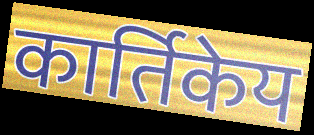
कार्तिकेय